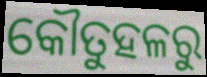
କୌତୁହଳରୁ